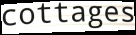
cottages